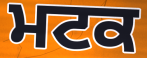
ਮਟਕ